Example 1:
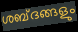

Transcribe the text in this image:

ശബ്ദങ്ങളും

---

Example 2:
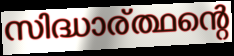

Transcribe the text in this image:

സിദ്ധാര്ത്ഥന്റെ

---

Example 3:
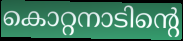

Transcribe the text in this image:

കൊറ്റനാടിന്റെ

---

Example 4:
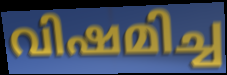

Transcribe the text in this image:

വിഷമിച്ച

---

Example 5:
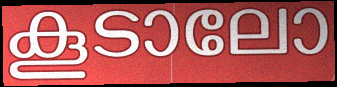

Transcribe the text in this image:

കൂടാലോ